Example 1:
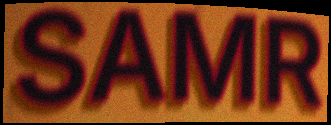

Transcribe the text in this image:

SAMR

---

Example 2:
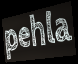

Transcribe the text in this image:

pehla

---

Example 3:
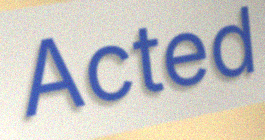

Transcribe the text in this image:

Acted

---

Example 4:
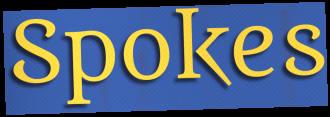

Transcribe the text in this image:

Spokes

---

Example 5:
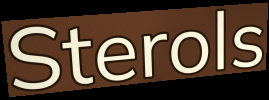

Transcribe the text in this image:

Sterols